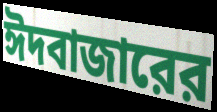
ঈদবাজারের